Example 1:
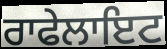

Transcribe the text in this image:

ਰਾਫੇਲਾਇਟ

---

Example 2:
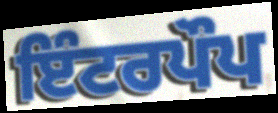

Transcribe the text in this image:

ਇੰਟਰਪੌਪ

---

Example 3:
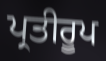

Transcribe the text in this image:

ਪ੍ਰਤੀਰੂਪ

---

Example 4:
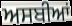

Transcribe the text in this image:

ਅਸਬੀਆਂ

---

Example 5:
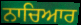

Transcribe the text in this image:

ਨਾਚਿਆਰ